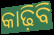
କାଢ଼ିବି